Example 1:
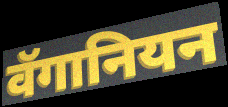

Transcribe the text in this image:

वॅगानियन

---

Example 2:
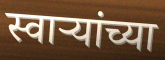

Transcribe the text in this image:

स्वाऱ्यांच्या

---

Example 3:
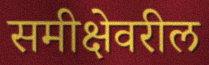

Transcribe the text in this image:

समीक्षेवरील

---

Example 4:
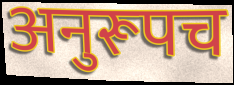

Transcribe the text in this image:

अनुरूपच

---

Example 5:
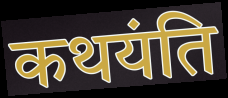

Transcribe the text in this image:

कथयंति